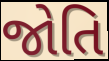
જોતિ